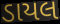
ડાયલ